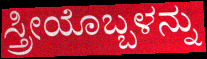
ಸ್ತ್ರೀಯೊಬ್ಬಳನ್ನು